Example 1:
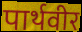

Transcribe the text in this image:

पार्थवीर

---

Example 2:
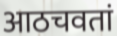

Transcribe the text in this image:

आठचवतां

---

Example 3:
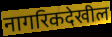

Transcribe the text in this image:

नागरिकदेखील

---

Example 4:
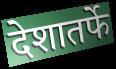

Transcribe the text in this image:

देशातर्फे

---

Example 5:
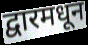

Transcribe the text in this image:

द्वारमधून